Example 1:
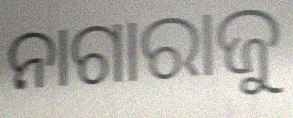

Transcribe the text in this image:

ନାଗାରାଜୁ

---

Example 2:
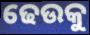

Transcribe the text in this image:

ଢେଉକୁ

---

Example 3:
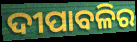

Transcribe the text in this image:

ଦୀପାବଳିର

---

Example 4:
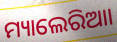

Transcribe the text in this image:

ମ୍ୟାଲେରିଆା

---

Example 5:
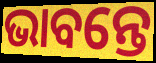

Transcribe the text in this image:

ଭାବନ୍ତେ